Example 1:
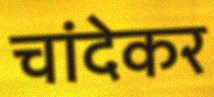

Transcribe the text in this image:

चांदेकर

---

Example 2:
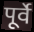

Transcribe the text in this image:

पूर्वे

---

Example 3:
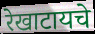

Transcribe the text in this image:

रेखाटायचे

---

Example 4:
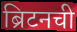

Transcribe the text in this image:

ब्रिटनची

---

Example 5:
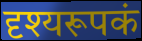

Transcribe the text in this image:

दृश्‍यरूपकं